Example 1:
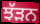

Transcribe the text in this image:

ਝੱੜਨ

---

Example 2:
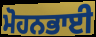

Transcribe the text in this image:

ਮੋਹਨਭਾਈ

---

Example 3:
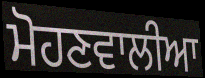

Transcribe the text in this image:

ਮੋਹਣਵਾਲੀਆ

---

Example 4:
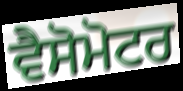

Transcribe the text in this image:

ਵੈਸੋਮੋਟਰ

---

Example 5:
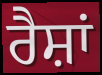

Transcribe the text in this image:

ਰੈਸ਼ਾਂ